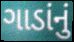
ગાડાંનું